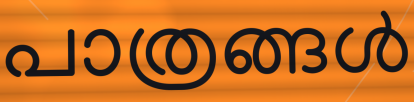
പാത്രങ്ങൾ